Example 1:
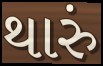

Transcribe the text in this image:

થારું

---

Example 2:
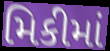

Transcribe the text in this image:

મિકીમાં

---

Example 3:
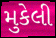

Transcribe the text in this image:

મુકેલી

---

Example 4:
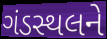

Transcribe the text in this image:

ગંડસ્થલને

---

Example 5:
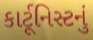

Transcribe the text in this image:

કાર્ટૂનિસ્ટનું